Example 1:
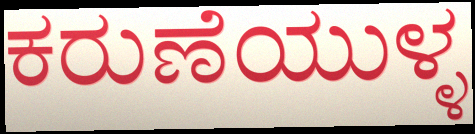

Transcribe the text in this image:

ಕರುಣೆಯುಳ್ಳ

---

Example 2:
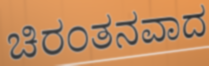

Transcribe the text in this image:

ಚಿರಂತನವಾದ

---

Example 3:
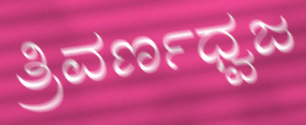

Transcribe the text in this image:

ತ್ರಿವರ್ಣಧ್ವಜ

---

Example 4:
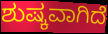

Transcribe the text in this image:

ಶುಷ್ಕವಾಗಿದೆ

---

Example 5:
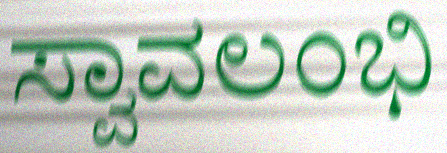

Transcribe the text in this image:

ಸ್ವಾವಲಂಭಿ